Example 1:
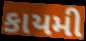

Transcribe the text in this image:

કાયમી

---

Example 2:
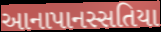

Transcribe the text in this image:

આનાપાનસ્સતિયા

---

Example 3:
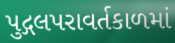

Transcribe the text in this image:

પુદ્ગલપરાવર્તકાળમાં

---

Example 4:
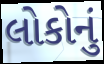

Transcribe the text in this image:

લોકોનું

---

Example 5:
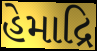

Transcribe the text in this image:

હેમાદ્રિ